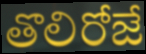
తొలిరోజే